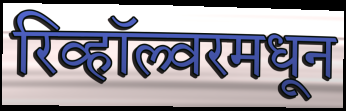
रिव्हॉल्वरमधून